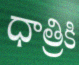
ధాత్రికి